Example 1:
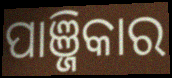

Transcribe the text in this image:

ପାଞ୍ଜିକାର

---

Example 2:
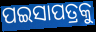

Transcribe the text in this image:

ପଇସାପତ୍ରକୁ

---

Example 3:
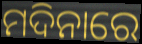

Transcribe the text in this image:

ମଦିନାରେ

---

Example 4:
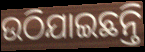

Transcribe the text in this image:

ଉଠିଯାଇଛନ୍ତି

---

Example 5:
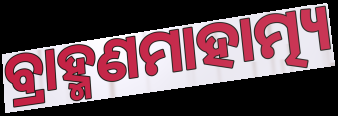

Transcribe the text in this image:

ବ୍ରାହ୍ମଣମାହାତ୍ମ୍ୟ